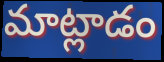
మాట్లాడం